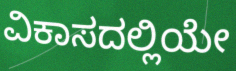
ವಿಕಾಸದಲ್ಲಿಯೇ